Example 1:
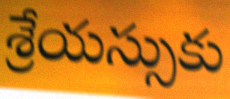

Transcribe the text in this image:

శ్రేయస్సుకు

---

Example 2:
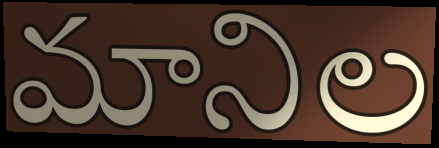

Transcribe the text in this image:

మానిల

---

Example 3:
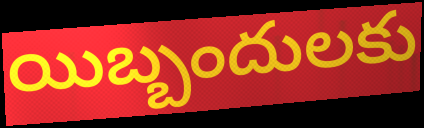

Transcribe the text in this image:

యిబ్బందులకు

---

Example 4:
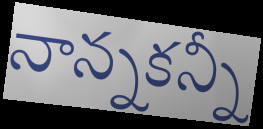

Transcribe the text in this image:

నాన్నకన్నీ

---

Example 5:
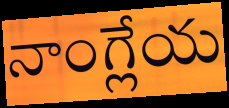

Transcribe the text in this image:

నాంగ్లేయ